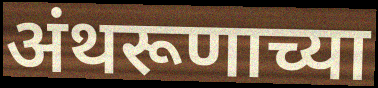
अंथरूणाच्या